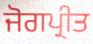
ਜੋਗਪ੍ਰੀਤ